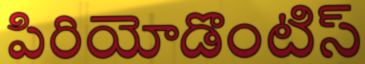
పిరియోడొంటిస్